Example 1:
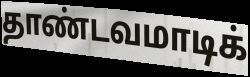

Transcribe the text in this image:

தாண்டவமாடிக்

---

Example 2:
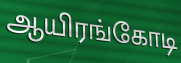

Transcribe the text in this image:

ஆயிரங்கோடி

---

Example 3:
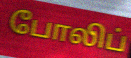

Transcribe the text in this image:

போலிப்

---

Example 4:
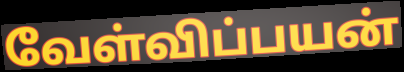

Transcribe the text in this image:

வேள்விப்பயன்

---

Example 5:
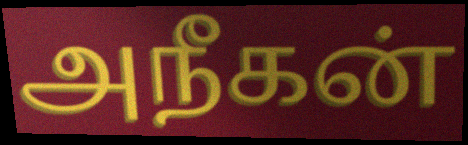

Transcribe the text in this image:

அநீகன்